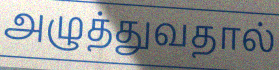
அழுத்துவதால்